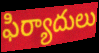
ఫిర్యాదులు